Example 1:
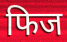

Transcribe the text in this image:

फिज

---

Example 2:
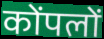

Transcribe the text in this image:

कोंपलों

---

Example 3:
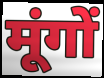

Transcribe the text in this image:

मूंगों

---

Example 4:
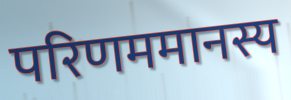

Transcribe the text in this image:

परिणममानस्य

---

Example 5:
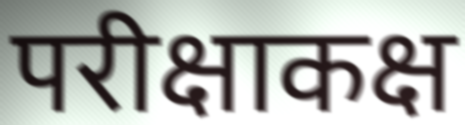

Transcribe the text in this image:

परीक्षाकक्ष